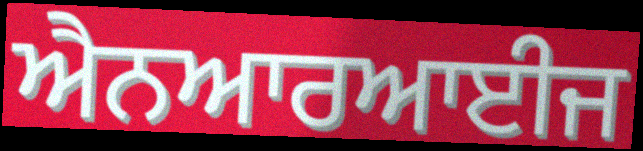
ਐਨਆਰਆਈਜ